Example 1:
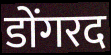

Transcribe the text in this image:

डोंगरद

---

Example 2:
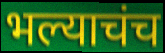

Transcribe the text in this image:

भल्याचंच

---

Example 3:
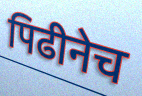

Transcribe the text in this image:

पिढीनेच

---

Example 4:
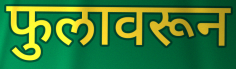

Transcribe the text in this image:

फुलावरून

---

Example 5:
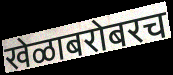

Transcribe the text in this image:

खेळाबरोबरच